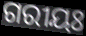
ଗରୀୟଃ